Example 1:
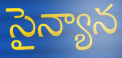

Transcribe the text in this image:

సైన్యాన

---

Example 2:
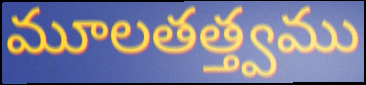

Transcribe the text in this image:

మూలతత్త్వము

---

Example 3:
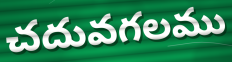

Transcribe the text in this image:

చదువగలము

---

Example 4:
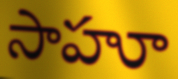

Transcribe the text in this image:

సాహూ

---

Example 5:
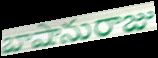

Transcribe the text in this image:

బాషానురాజు